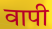
वापी